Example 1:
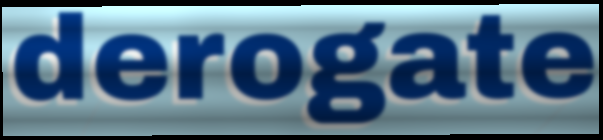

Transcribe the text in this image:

derogate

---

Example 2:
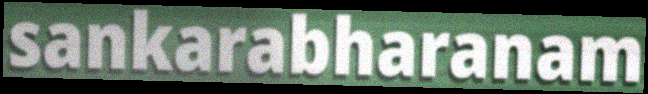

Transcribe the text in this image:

sankarabharanam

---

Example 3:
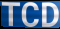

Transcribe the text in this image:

TCD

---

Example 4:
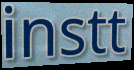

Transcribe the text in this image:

instt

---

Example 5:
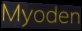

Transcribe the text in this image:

Myoden